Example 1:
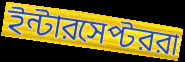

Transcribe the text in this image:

ইন্টারসেপ্টররা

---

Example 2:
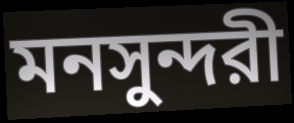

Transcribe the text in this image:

মনসুন্দরী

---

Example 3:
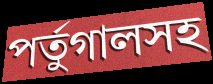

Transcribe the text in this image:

পর্তুগালসহ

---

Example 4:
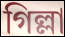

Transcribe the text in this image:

গিল্লা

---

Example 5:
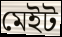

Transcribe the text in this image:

মেইট